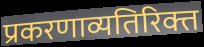
प्रकरणाव्यतिरिक्त